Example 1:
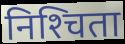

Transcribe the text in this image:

निश्चिता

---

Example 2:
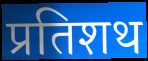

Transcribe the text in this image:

प्रतिशथ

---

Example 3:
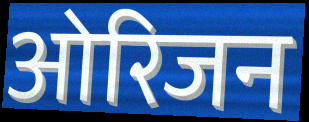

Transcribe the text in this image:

ओरिजन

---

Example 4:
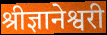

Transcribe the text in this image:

श्रीज्ञानेश्वरी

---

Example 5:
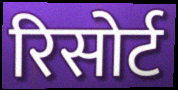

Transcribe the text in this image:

रिसोर्ट